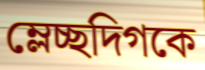
ম্লেচ্ছদিগকে